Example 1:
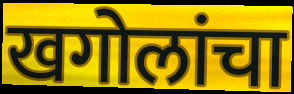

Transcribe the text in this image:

खगोलांचा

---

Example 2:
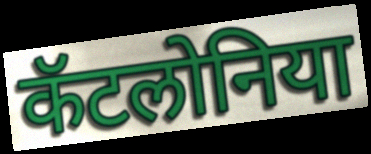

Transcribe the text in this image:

कॅटलोनिया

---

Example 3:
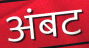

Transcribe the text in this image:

अंबट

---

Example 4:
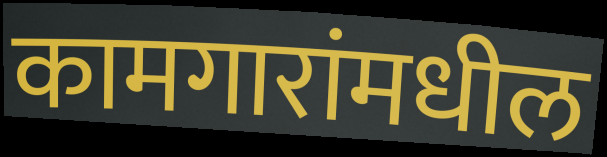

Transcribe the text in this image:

कामगारांमधील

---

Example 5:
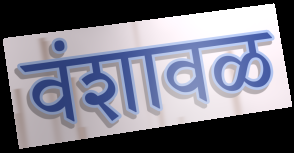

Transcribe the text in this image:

वंशावळ